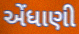
એંધાણી